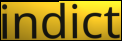
indict